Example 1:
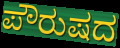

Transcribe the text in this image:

ಪೌರುಷದ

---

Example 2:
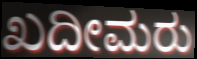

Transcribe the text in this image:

ಖದೀಮರು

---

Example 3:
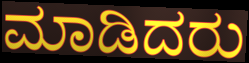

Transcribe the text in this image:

ಮಾಡಿದರು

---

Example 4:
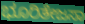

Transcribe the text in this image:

ಭೂರಿತೇಜಸಾ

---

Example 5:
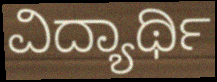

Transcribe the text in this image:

ವಿದ್ಯಾರ್ಥಿ